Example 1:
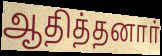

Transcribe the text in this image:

ஆதித்தனார்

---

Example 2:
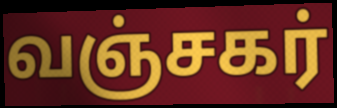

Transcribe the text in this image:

வஞ்சகர்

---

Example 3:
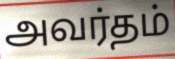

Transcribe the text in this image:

அவர்தம்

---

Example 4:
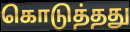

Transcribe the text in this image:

கொடுத்தது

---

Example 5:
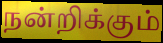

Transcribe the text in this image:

நன்றிக்கும்